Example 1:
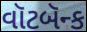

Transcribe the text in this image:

વૉટબૅન્ક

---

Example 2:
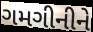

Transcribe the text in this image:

ગમગીનીને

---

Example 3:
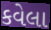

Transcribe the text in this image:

કવેલા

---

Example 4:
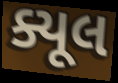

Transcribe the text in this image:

ક્યૂલ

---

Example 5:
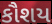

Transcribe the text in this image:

કૌશય